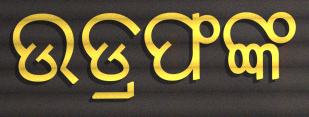
ଉଡ୍ରଫଙ୍କ